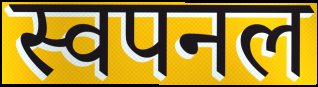
स्वपनल